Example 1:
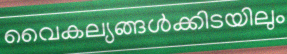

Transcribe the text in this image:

വൈകല്യങ്ങൾക്കിടയിലും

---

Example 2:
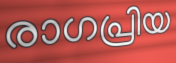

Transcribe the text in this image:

രാഗപ്രിയ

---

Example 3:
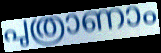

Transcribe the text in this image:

പുത്രാണാം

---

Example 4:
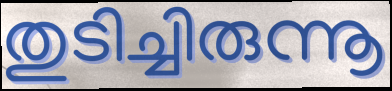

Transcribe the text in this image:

തുടിച്ചിരുന്നൂ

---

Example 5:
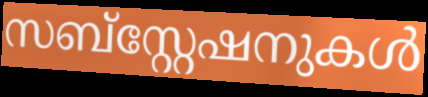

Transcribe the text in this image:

സബ്സ്റ്റേഷനുകൾ